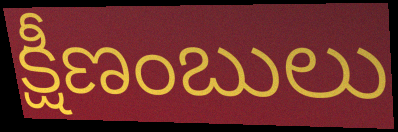
క్షీణంబులు